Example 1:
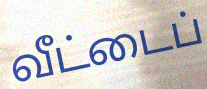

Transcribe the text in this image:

வீட்டைப்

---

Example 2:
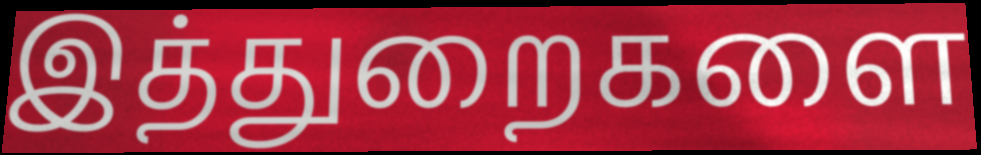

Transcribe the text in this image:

இத்துறைகளை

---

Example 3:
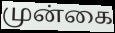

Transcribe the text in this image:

முன்கை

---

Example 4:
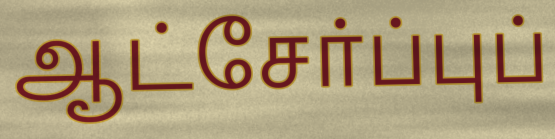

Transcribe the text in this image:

ஆட்சேர்ப்புப்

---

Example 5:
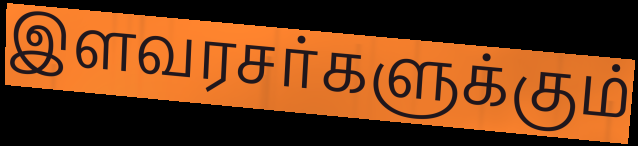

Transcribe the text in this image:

இளவரசர்களுக்கும்